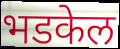
भडकेल